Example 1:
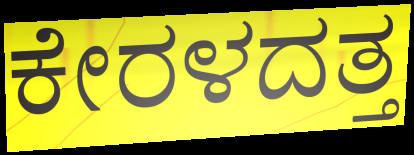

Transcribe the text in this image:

ಕೇರಳದತ್ತ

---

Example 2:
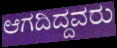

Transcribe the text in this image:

ಆಗದಿದ್ದವರು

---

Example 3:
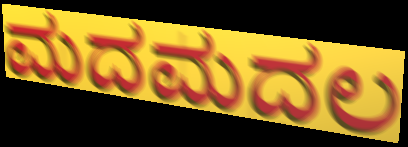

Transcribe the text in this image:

ಮದಮದಲ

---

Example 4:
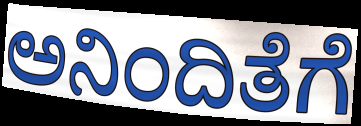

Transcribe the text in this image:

ಅನಿಂದಿತೆಗೆ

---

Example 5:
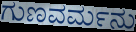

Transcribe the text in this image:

ಗುಣವರ್ಮನು